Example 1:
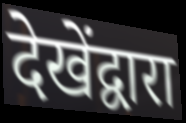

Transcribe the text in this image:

देखेंद्वारा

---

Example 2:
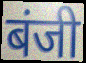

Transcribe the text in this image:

बंजी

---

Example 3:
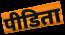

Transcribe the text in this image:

पीडिता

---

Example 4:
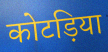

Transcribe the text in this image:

कोटड़िया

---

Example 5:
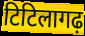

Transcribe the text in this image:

टिटिलागढ़